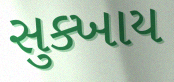
સુક્ખાય